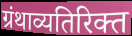
ग्रंथाव्यतिरिक्त